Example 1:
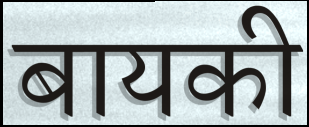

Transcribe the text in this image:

बायकी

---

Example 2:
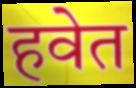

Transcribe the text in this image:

हवेत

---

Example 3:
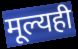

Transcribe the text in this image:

मूल्यही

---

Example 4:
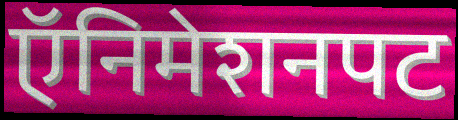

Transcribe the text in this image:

ऍनिमेशनपट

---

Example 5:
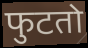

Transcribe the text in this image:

फुटतो